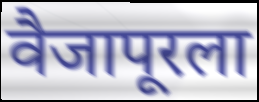
वैजापूरला